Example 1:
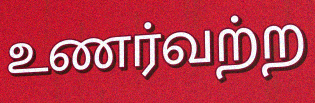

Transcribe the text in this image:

உணர்வற்ற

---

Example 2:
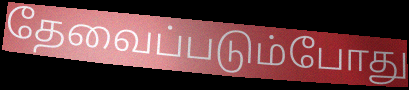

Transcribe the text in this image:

தேவைப்படும்போது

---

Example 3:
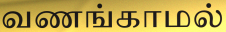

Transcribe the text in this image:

வணங்காமல்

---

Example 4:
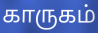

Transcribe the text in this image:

காருகம்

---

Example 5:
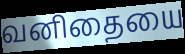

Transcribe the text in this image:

வனிதையை